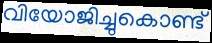
വിയോജിച്ചുകൊണ്ട്